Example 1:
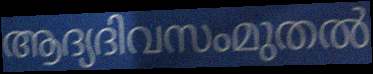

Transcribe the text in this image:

ആദ്യദിവസംമുതൽ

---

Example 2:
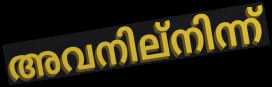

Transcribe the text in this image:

അവനില്നിന്ന്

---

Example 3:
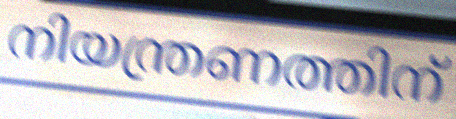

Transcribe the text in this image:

നിയന്ത്രണത്തിന്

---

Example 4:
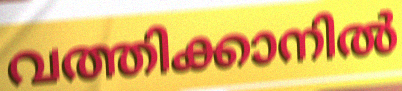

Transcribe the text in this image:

വത്തിക്കാനിൽ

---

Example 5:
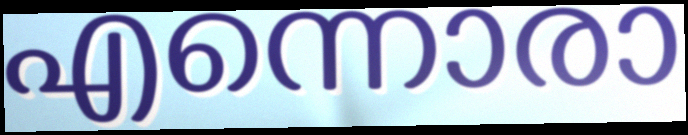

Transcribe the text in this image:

എന്നൊരാ